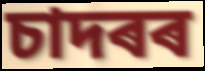
চাদৰৰ